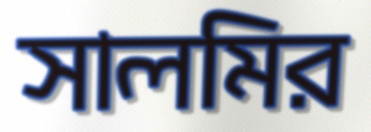
সালমির